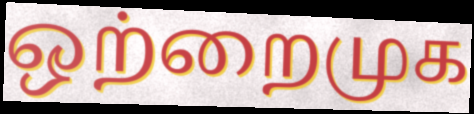
ஒற்றைமுக